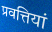
प्रवत्तियां